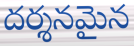
దర్శనమైన